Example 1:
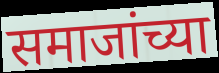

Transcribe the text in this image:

समाजांच्या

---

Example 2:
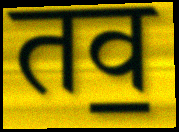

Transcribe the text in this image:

तव॒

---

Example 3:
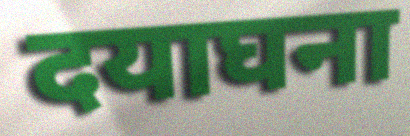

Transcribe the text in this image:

दयाघना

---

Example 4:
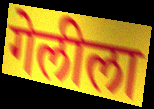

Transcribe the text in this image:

गेलीला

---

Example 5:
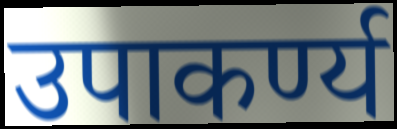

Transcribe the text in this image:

उपाकर्ण्य